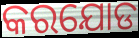
କରଯୋଡ